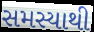
સમસ્યાથી